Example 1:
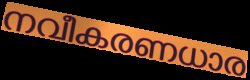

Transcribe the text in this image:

നവീകരണധാര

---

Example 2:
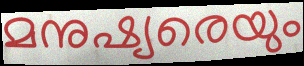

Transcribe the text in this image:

മനുഷ്യരെയും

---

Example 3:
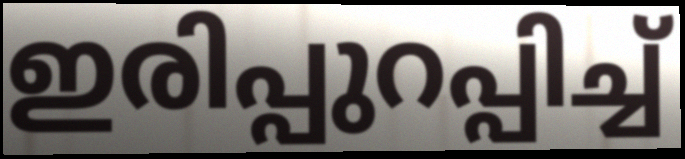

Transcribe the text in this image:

ഇരിപ്പുറപ്പിച്ച്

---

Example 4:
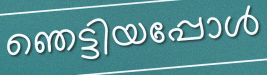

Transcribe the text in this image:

ഞെട്ടിയപ്പോൾ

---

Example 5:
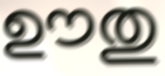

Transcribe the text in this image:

ഊതു